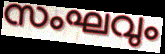
സംഘവും